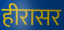
हीरासर